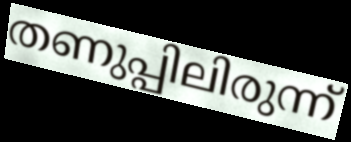
തണുപ്പിലിരുന്ന്